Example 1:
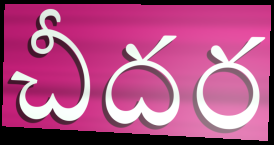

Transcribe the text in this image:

చీదర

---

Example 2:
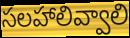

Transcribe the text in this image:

సలహాలివ్వాలి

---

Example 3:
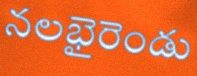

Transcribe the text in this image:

నలభైరెండు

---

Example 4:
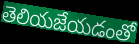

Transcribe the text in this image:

తెలియజేయడంతో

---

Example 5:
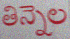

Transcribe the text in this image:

తిన్నెల